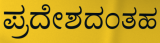
ಪ್ರದೇಶದಂತಹ